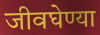
जीवघेण्या